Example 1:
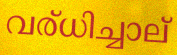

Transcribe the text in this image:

വര്ധിച്ചാല്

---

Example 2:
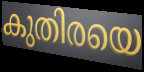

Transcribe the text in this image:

കുതിരയെ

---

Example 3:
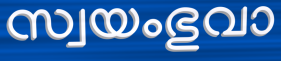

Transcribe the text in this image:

സ്വയംഭുവാ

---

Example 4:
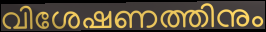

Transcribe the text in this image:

വിശേഷണത്തിനും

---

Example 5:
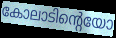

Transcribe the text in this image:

കോലാടിന്റെയോ